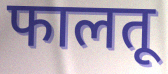
फालतू